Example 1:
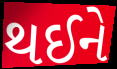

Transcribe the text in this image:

થઈને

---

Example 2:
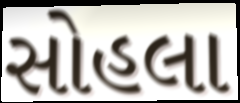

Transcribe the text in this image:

સોહલા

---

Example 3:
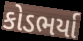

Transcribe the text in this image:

કોડભર્યા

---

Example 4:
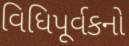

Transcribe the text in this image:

વિધિપૂર્વકનો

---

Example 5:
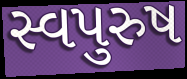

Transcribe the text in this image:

સ્વપુરુષ